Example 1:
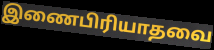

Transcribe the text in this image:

இணைபிரியாதவை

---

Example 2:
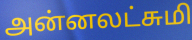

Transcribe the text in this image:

அன்னலட்சுமி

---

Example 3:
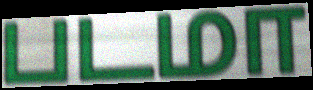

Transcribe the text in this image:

படமா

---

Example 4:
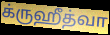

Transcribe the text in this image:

க்ருஹீத்வா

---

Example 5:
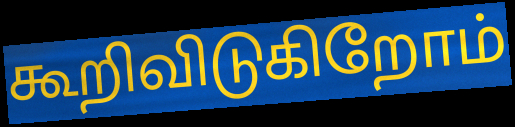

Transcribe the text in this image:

கூறிவிடுகிறோம்